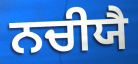
ਨਚੀਯੈ